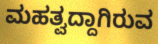
ಮಹತ್ವದ್ದಾಗಿರುವ